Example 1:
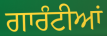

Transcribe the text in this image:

ਗਾਰੰਟੀਆਂ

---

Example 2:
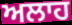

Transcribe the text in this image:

ਅਲਾਹ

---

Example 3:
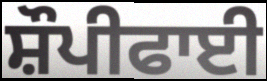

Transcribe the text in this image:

ਸ਼ੌਪੀਫਾਈ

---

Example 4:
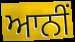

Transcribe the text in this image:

ਆਨੀਂ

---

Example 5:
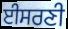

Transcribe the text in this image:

ਈਸਰਣੀ